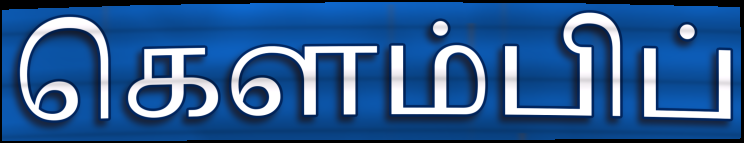
கௌம்பிப்